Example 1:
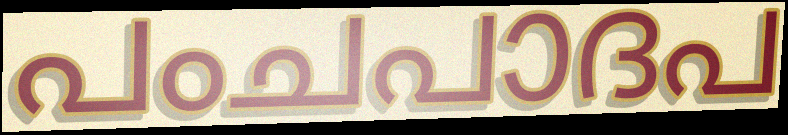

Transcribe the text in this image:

പംചപാദപ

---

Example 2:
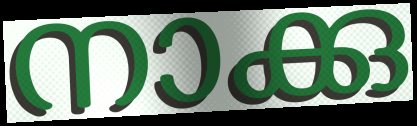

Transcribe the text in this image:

നാക്കു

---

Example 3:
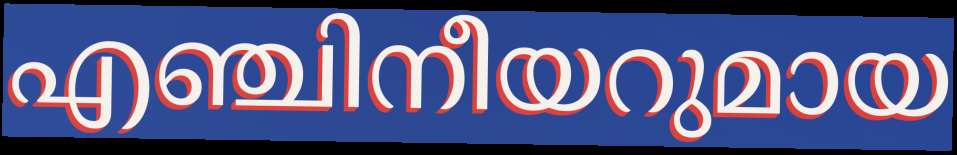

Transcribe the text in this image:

എഞ്ചിനീയറുമായ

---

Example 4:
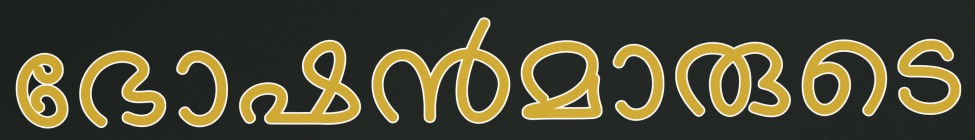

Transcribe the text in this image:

ഭോഷൻമാരുടെ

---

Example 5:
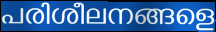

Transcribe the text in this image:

പരിശീലനങ്ങളെ